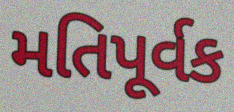
મતિપૂર્વક